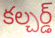
కల్చర్డ్